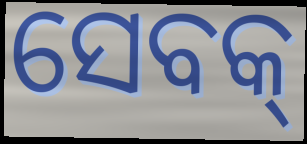
ସେବକ୍